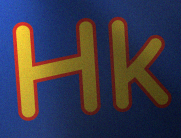
Hk